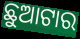
ଛୁଆଟାର